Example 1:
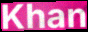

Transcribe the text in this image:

Khan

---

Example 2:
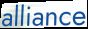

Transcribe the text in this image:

alliance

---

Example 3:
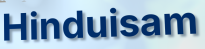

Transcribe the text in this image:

Hinduisam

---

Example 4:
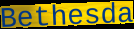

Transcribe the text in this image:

Bethesda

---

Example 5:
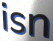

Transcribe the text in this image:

isn